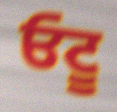
ਓਟੂ